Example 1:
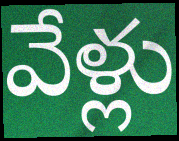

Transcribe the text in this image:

వేళ్లు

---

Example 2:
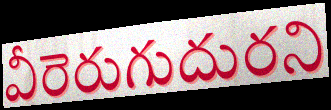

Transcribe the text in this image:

వీరెరుగుదురని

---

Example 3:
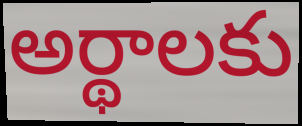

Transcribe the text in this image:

అర్థాలకు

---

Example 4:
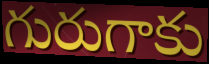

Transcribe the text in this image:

గురుగాకు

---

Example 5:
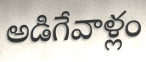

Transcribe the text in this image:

అడిగేవాళ్లం